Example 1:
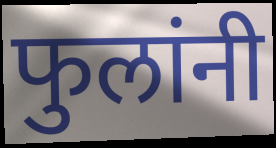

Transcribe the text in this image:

फुलांनी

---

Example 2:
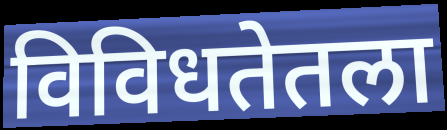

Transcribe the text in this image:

विविधतेतला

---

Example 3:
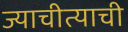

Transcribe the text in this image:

ज्याचीत्याची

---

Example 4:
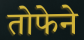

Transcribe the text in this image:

तोफेने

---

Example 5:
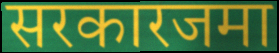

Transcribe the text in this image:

सरकारजमा